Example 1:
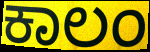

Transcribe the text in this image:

ಕಾಲಂ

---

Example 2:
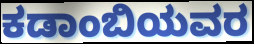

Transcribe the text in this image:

ಕಡಾಂಬಿಯವರ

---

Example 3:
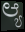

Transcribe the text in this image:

ಆ್ಯ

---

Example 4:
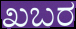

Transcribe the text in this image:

ಖಬರ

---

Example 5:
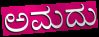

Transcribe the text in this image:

ಅಮದು